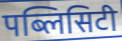
पब्लिसिटी